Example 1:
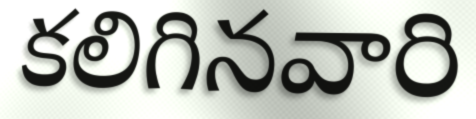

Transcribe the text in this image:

కలిగినవారి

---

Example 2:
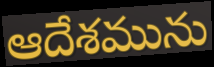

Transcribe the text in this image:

ఆదేశమును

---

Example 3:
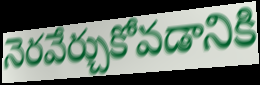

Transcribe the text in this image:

నెరవేర్చుకోవడానికి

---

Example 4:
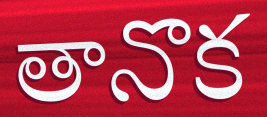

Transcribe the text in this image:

తానొక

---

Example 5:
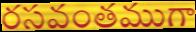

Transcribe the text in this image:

రసవంతముగా